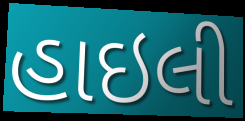
હાઇલી